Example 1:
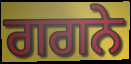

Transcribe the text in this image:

ਗਗਨੇ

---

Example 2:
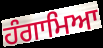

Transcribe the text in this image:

ਹੰਗਾਮਿਆ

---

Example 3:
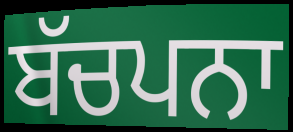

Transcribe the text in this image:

ਬੱਚਪਨਾ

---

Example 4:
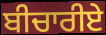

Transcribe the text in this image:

ਬੀਚਾਰੀਏ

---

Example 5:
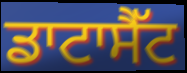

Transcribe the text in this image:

ਡਾਟਾਸੈੱਟ